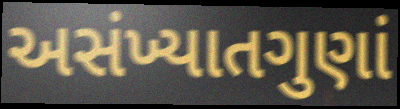
અસંખ્યાતગુણાં